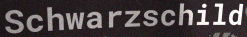
Schwarzschild